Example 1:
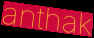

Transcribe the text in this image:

anthak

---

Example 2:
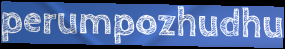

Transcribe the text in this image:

perumpozhudhu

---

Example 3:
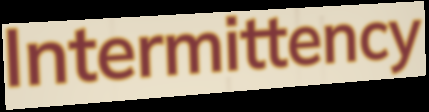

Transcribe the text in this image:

Intermittency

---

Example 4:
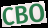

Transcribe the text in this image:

CBO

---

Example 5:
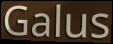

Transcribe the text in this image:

Galus